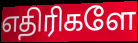
எதிரிகளே